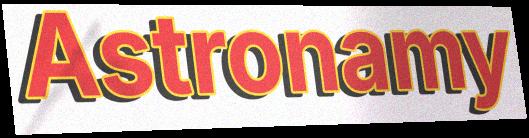
Astronamy